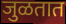
जुळतात